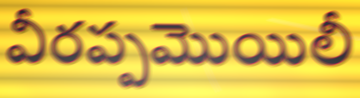
వీరప్పమొయిలీ